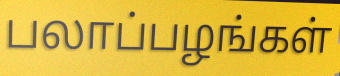
பலாப்பழங்கள்